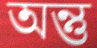
অন্তু